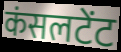
कंसलटेंट